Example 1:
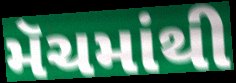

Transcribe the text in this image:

મૅચમાંથી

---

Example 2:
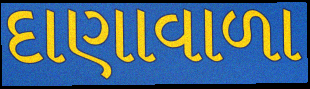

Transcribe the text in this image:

દાણાવાળા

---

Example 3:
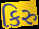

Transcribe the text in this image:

કિરુ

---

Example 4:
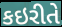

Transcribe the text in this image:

કઇરીતે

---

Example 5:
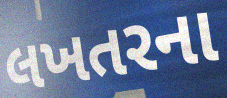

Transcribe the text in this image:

લખતરના